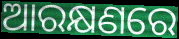
ଆରକ୍ଷଣରେ